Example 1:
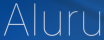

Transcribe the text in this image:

Aluru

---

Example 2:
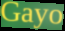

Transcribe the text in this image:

Gayo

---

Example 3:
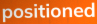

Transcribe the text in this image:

positioned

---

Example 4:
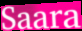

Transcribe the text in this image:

Saara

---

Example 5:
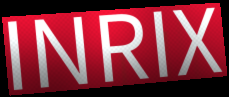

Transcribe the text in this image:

INRIX